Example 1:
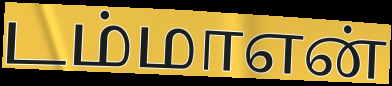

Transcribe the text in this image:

டம்மாஎன்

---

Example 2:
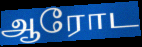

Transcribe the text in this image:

ஆரோட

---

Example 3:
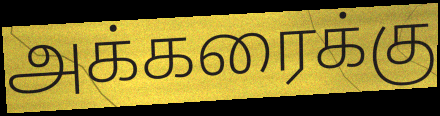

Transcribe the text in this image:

அக்கரைக்கு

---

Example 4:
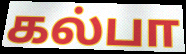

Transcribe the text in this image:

கல்பா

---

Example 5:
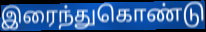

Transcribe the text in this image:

இரைந்துகொண்டு